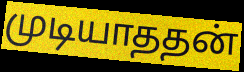
முடியாததன்